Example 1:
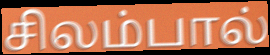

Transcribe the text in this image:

சிலம்பால்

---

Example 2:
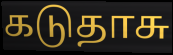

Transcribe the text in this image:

கடுதாசு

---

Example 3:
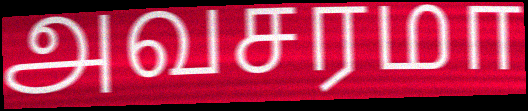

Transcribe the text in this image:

அவசரமா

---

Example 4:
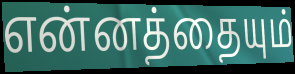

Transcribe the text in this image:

என்னத்தையும்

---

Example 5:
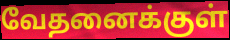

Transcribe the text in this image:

வேதனைக்குள்